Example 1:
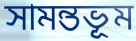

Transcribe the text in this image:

সামন্তভূম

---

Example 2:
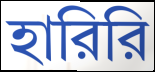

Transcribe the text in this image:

হারিরি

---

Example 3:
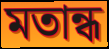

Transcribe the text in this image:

মতান্ধ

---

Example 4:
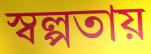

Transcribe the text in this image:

স্বল্পতায়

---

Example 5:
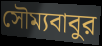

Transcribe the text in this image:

সৌম্যবাবুর